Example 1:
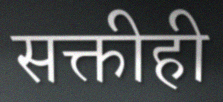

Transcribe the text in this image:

सक्तीही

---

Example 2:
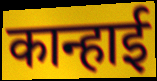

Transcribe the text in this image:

कान्हाई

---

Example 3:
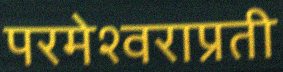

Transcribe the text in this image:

परमेश्वराप्रती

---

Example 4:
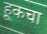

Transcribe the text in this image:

हूकचा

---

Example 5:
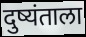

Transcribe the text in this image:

दुष्यंताला